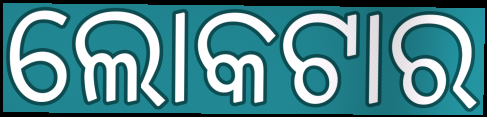
ଲୋକଟାର